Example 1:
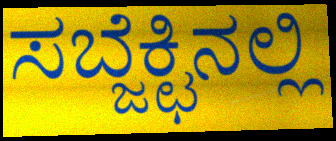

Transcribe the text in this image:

ಸಬ್ಜೆಕ್ಟಿನಲ್ಲಿ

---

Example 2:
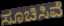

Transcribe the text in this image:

ಸೂಚಿಸಿವೆ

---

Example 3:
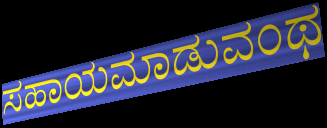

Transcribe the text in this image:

ಸಹಾಯಮಾಡುವಂಥ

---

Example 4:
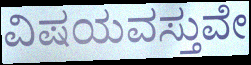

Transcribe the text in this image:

ವಿಷಯವಸ್ತುವೇ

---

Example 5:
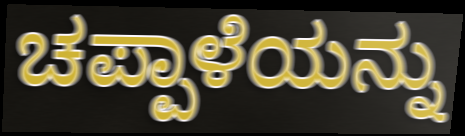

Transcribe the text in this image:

ಚಪ್ಪಾಳೆಯನ್ನು